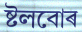
ষ্টলবোৰ